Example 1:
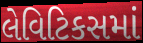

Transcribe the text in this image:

લેવિટિકસમાં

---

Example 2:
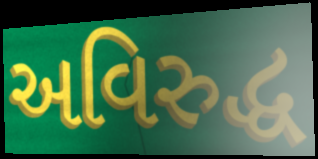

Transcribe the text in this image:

અવિરુદ્ધ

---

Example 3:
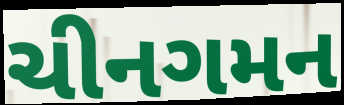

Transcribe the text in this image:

ચીનગમન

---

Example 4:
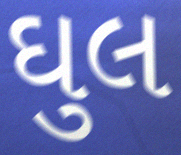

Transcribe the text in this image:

ઘુલ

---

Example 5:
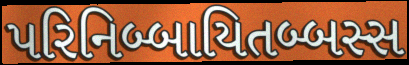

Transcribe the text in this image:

પરિનિબ્બાયિતબ્બસ્સ